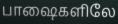
பாஷைகளிலே